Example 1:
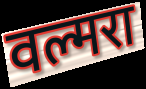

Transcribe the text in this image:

वल्मरा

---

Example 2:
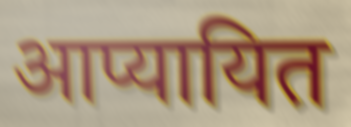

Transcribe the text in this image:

आप्यायित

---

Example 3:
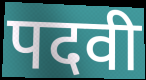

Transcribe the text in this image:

पदवी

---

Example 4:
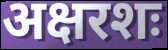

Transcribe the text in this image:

अक्षरशः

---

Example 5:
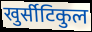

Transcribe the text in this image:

खुर्सीटिकुल